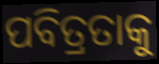
ପବିତ୍ରତାକୁ